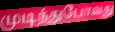
முடிந்துபோவது